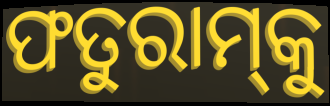
ଫତୁରାମ୍‌କୁ